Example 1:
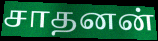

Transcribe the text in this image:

சாதனன்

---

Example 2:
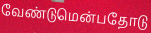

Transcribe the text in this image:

வேண்டுமென்பதோடு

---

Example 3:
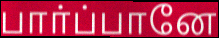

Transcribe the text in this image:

பார்ப்பானே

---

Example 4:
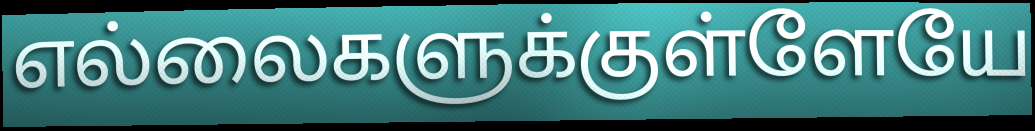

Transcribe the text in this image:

எல்லைகளுக்குள்ளேயே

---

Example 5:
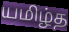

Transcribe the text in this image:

யமிழ்த